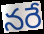
నరే